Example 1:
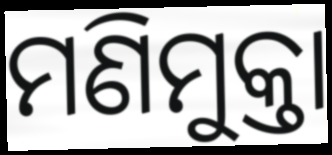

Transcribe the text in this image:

ମଣିମୁକ୍ତା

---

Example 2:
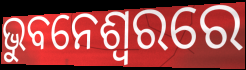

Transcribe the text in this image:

ଭୁବନେଶ୍ଵରରେ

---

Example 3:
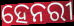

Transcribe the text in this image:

ହେନରୀ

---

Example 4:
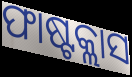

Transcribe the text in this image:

ଫାଷ୍ଟକ୍ଲାସ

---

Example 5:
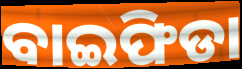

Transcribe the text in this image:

ବାଇଫିଡା